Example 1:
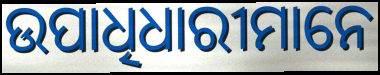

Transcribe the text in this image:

ଉପାଧିଧାରୀମାନେ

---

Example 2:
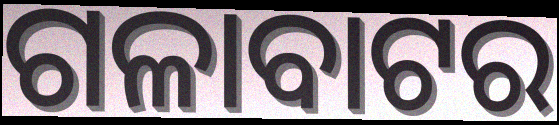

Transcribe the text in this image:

ଗଳାବାଟର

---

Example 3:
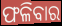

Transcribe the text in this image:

ଫଳିବାର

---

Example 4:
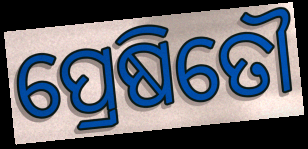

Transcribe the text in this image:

ପ୍ରେଷିତୌ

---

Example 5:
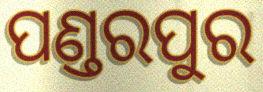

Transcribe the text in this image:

ପଣ୍ଡରପୁର